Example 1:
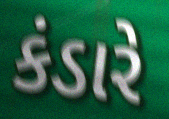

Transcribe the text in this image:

કંડારે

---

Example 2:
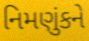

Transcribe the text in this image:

નિમણુંકને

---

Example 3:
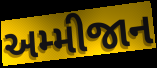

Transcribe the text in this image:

અમ્મીજાન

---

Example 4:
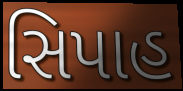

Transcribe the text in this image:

સિપાહ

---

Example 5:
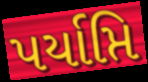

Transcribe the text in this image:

પર્યાપ્તિ